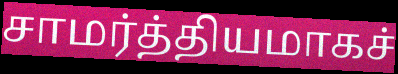
சாமர்த்தியமாகச்